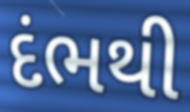
દંભથી